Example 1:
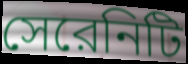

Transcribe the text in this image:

সেরেনিটি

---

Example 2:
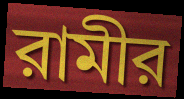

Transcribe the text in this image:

রামীর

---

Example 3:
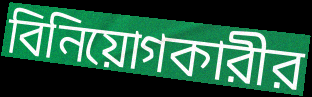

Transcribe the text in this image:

বিনিয়োগকারীর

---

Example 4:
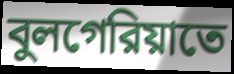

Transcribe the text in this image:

বুলগেরিয়াতে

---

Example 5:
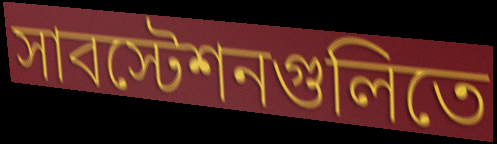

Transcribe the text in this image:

সাবস্টেশনগুলিতে